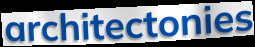
architectonies